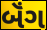
બૅંગ